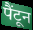
पैंटून